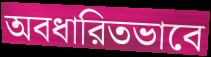
অবধারিতভাবে